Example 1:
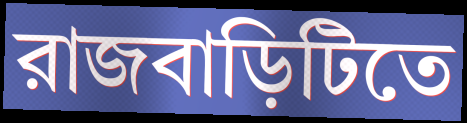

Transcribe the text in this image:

রাজবাড়িটিতে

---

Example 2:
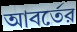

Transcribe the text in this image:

আবর্তের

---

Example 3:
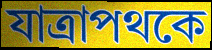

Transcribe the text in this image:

যাত্রাপথকে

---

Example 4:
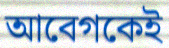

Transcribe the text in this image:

আবেগকেই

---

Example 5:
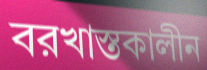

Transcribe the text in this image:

বরখাস্তকালীন